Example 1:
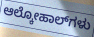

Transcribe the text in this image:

ಆಲ್ಕೋಹಾಲ್‌ಗಳು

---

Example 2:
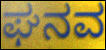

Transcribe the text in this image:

ಘನವ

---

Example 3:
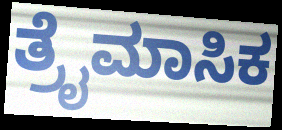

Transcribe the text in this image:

ತ್ರೈಮಾಸಿಕ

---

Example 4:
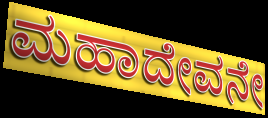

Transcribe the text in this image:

ಮಹಾದೇವನೇ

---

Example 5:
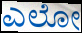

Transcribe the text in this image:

ಎಲೋ